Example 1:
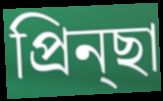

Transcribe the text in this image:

প্রিন্ছা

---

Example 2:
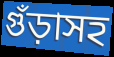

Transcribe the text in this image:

গুঁড়াসহ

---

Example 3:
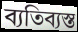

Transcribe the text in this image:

ব্যতিব্যস্ত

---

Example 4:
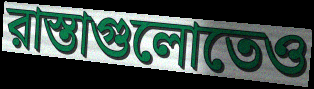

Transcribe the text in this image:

রাস্তাগুলোতেও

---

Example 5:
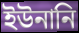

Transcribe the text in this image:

ইউনানি